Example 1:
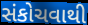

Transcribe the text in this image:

સંકોચવાથી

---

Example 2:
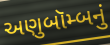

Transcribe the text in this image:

અણુબૉમ્બનું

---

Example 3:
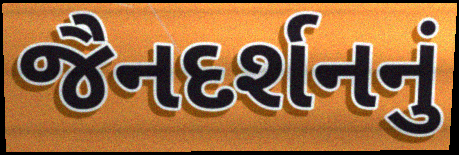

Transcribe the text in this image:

જૈનદર્શનનું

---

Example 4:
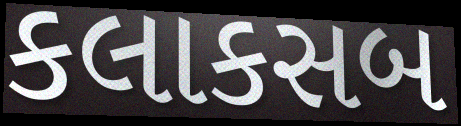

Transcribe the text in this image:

કલાકસબ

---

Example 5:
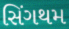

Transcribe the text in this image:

સિંગથમ